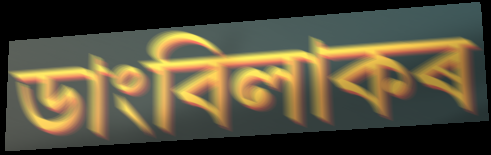
ডাংবিলাকৰ